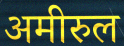
अमीरुल